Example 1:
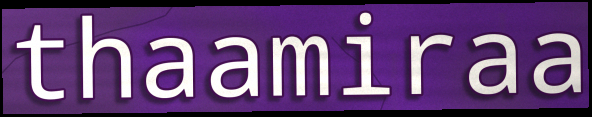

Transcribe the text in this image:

thaamiraa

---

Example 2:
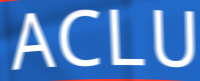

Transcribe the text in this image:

ACLU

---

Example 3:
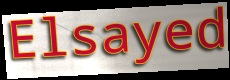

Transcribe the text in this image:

Elsayed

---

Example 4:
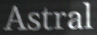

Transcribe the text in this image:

Astral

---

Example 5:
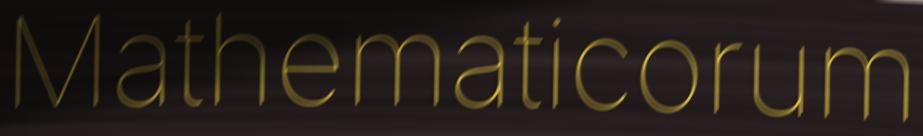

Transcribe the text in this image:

Mathematicorum